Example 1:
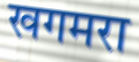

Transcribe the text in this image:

खगमरा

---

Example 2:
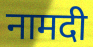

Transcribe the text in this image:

नामदी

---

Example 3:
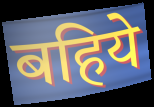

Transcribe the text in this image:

बहिये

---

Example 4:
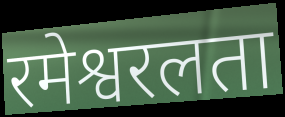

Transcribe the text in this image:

रमेश्वरलता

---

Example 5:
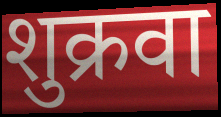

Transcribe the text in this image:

शुक्रवा